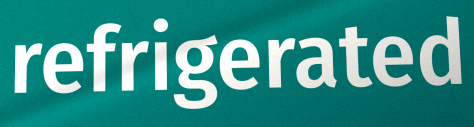
refrigerated